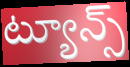
ట్యూన్స్